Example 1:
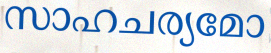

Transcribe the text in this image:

സാഹചര്യമോ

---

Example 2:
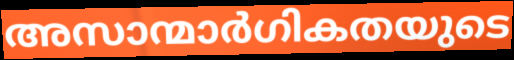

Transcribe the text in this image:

അസാന്മാർഗികതയുടെ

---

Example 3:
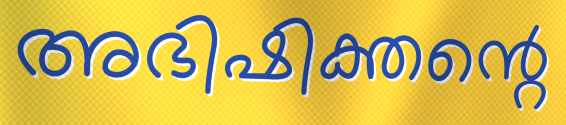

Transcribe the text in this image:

അഭിഷിക്തന്റെ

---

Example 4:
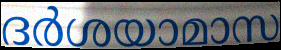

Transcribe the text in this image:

ദർശയാമാസ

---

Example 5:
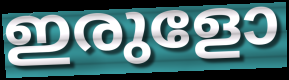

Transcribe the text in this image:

ഇരുളോ